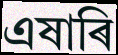
এষাৰি